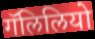
गॅलिलियो